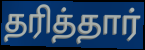
தரித்தார்